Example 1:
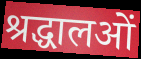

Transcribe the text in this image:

श्रद्धालओं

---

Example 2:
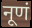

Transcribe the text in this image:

नूणं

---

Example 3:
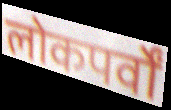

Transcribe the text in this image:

लोकपर्वों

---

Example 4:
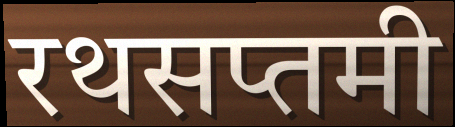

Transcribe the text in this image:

रथसप्तमी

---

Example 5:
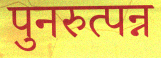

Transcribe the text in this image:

पुनरुत्पन्न